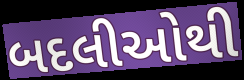
બદલીઓથી